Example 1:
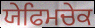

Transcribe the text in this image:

ਯੇਫਿਮਚੇਕ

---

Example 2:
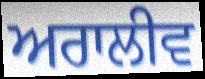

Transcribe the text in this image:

ਅਰਾਲੀਵ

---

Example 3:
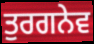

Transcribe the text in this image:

ਤੁਰਗਨੇਵ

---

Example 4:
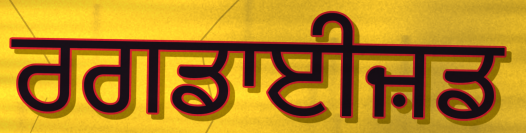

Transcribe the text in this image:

ਰਗਡਾਈਜ਼ਡ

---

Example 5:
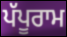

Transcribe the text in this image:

ਪੱਪੂਰਾਮ